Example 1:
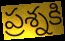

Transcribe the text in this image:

ప్రశ్నకి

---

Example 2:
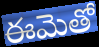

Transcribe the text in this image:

ఈమెతో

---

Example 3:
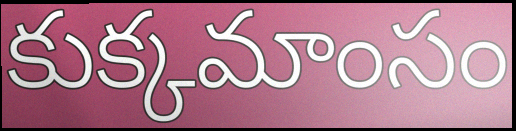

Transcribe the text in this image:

కుక్కమాంసం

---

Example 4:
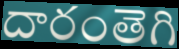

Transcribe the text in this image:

దారంతెగి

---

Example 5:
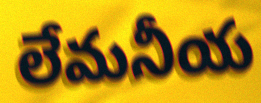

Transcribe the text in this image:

లేమనీయ